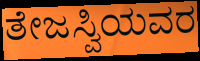
ತೇಜಸ್ವಿಯವರ